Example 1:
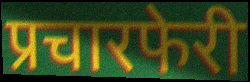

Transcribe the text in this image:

प्रचारफेरी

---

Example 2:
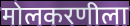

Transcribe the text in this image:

मोलकरणीला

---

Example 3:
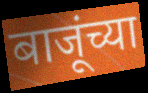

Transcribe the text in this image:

बाजूंच्या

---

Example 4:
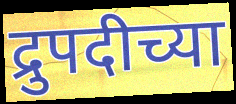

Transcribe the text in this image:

द्रुपदीच्या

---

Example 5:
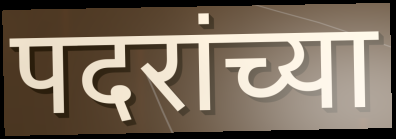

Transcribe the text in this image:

पदरांच्या